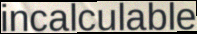
incalculable